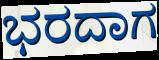
ಭರದಾಗ